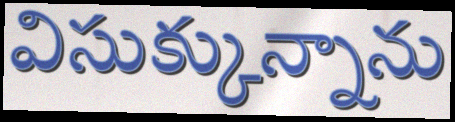
విసుక్కున్నాను